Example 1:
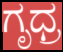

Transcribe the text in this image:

ಗೃಧ್ರ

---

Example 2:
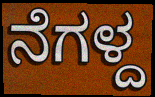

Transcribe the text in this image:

ನೆಗಳ್ದ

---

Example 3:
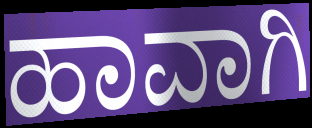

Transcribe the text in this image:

ಹಾವಾಗಿ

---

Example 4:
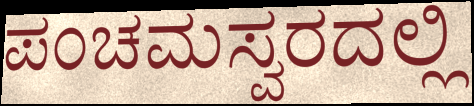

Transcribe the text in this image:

ಪಂಚಮಸ್ವರದಲ್ಲಿ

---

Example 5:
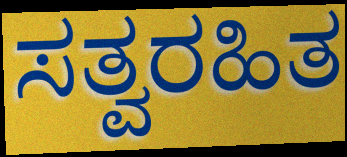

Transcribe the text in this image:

ಸತ್ವರಹಿತ